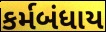
કર્મબંધાય